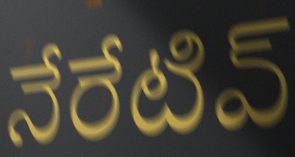
నేరేటివ్